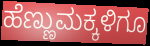
ಹೆಣ್ಣುಮಕ್ಕಳಿಗೂ